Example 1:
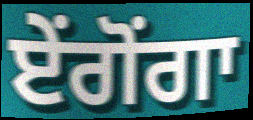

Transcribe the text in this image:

ਏਂਗੋਂਗਾ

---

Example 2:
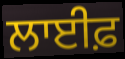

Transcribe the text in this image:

ਲਾਈਫ਼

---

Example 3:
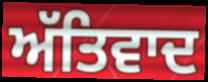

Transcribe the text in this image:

ਅੱਤਿਵਾਦ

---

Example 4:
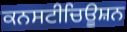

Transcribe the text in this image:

ਕਨਸਟੀਚਿਊਸ਼ਨ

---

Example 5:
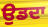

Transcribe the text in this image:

ਉਡਦਾ